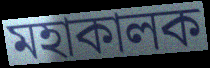
মহাকালক